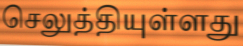
செலுத்தியுள்ளது